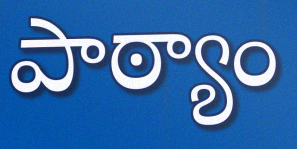
పాఠ్యాం